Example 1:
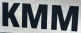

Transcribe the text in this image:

KMM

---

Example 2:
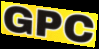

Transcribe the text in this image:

GPC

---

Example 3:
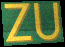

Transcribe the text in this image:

ZU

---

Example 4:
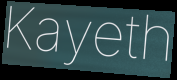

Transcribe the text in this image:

Kayeth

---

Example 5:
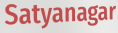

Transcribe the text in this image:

Satyanagar